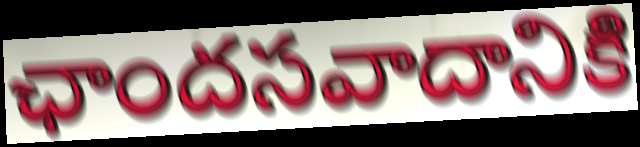
ఛాందసవాదానికి